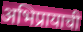
अभिप्रायाची